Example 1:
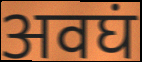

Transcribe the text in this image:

अवघं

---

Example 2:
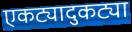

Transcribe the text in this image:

एकट्यादुकट्या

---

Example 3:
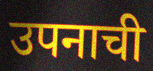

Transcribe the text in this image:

उपनाची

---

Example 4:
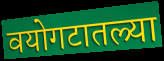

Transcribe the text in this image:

वयोगटातल्या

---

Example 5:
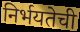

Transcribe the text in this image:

निर्भयतेची